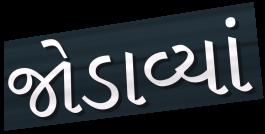
જોડાવ્યાં